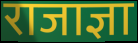
राजाज्ञा